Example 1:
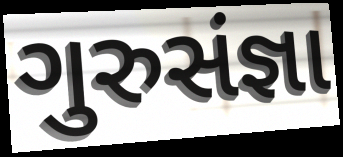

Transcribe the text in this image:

ગુરુસંજ્ઞા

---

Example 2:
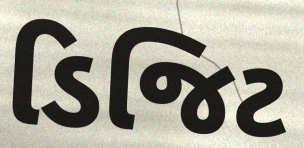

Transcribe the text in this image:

ડિજિટ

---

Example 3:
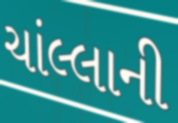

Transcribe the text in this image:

ચાંલ્લાની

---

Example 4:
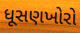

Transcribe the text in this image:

ધૂસણખોરો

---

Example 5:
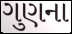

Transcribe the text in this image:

ગુણના